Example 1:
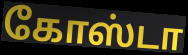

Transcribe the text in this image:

கோஸ்டா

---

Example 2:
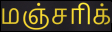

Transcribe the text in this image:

மஞ்சரிக்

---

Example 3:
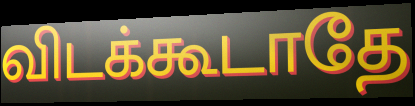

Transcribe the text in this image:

விடக்கூடாதே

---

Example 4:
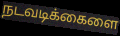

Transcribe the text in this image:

நடவடிக்கைளை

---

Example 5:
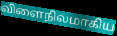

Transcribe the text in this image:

விளைநிலமாகிய